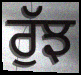
ਰੁੱਝ